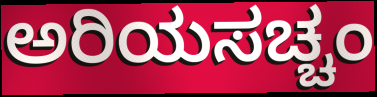
ಅರಿಯಸಚ್ಚಂ